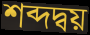
শব্দদ্বয়